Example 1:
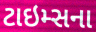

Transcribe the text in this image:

ટાઇમ્સના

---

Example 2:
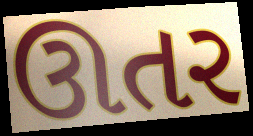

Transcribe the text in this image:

ઊતર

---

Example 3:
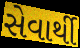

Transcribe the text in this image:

સેવાર્થી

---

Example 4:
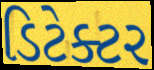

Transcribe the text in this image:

ડિટેક્ટર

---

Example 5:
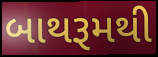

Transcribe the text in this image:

બાથરૂમથી